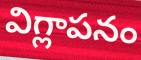
విగ్లాపనం